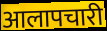
आलापचारी